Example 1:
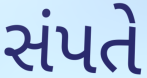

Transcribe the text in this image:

સંપતે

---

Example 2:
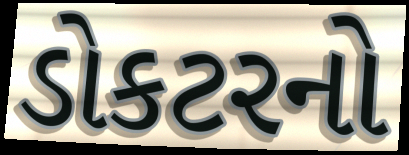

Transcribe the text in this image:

ડોકટરનો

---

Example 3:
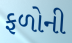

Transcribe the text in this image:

ફળોની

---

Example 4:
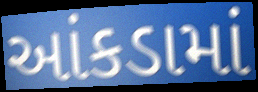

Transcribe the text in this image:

આંકડામાં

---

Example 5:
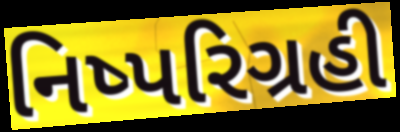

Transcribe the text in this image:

નિષ્પરિગ્રહી